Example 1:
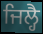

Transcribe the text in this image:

ਜਿਲ੍ਹੈ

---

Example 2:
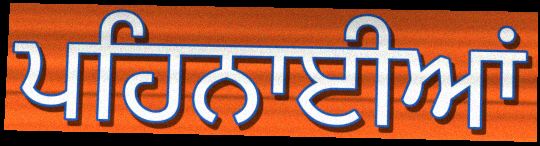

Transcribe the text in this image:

ਪਹਿਨਾਈਆਂ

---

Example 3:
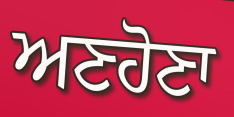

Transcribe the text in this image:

ਅਣਹੋਣਾ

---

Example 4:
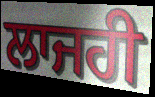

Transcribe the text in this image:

ਲਾਜਹੀ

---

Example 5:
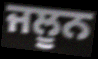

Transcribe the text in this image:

ਜਲੂਨ